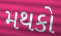
મથકો